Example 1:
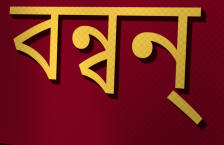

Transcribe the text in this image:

বন্বন্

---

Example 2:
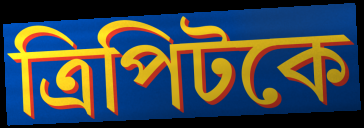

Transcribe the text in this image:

ত্রিপিটকে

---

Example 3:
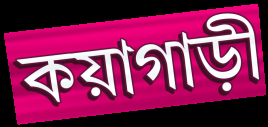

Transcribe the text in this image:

কয়াগাড়ী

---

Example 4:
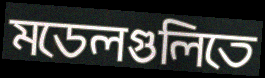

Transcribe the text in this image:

মডেলগুলিতে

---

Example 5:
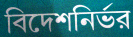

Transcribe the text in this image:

বিদেশনির্ভর